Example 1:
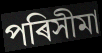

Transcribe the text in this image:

পৰিসীমা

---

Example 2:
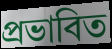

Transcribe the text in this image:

প্ৰভাবিত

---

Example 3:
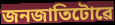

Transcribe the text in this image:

জনজাতিটোৱে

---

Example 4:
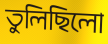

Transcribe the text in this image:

তুলিছিলো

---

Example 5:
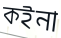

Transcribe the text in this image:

কইনা